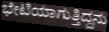
ಭೇಟಿಯಾಗುತ್ತಿದ್ದನು